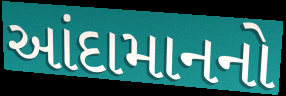
આંદામાનનો